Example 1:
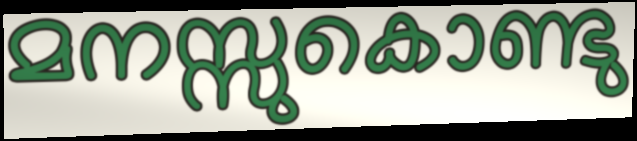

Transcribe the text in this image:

മനസ്സുകൊണ്ടു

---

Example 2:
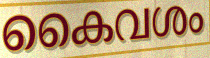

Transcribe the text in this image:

കൈവശം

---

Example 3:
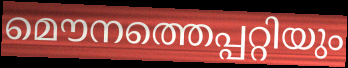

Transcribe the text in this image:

മൌനത്തെപ്പറ്റിയും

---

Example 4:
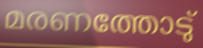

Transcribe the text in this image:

മരണത്തോടു്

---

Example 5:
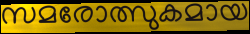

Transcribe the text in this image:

സമരോത്സുകമായ